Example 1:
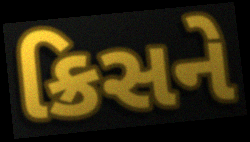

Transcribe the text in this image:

ક્રિસને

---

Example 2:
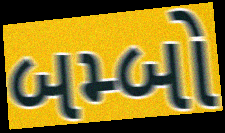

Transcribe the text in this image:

બમ્બો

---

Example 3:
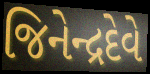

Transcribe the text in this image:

જિનેન્દ્રદેવે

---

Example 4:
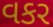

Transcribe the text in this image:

વકર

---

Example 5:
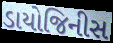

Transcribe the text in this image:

ડાયોજિનીસ